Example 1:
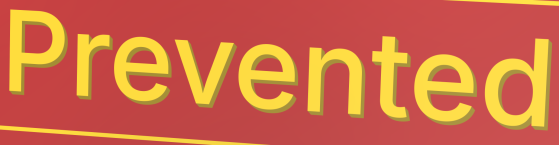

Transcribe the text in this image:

Prevented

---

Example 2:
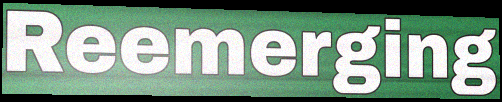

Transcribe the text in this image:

Reemerging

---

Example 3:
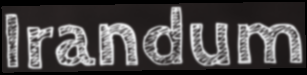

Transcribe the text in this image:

Irandum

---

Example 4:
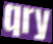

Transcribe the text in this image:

qry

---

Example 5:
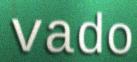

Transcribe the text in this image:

vado